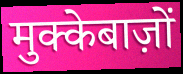
मुक्केबाज़ों